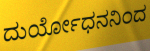
ದುರ್ಯೋಧನನಿಂದ